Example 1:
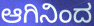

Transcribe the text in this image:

ಆಗಿನಿಂದ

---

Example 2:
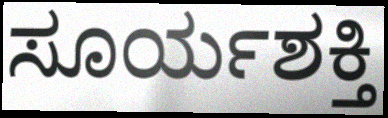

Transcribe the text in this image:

ಸೂರ್ಯಶಕ್ತಿ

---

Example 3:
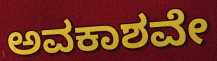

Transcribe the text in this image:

ಅವಕಾಶವೇ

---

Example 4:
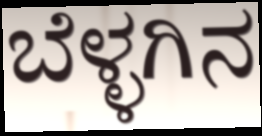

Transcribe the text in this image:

ಬೆಳ್ಳಗಿನ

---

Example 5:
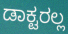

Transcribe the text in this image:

ಡಾಕ್ಟರಲ್ಲ